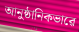
আনুষ্ঠানিকভাৱে